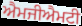
ਐਮਜੀਐਮਟੀ